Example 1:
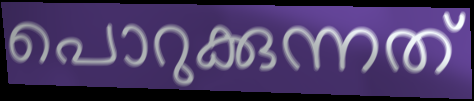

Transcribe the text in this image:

പൊറുക്കുന്നത്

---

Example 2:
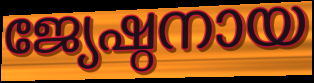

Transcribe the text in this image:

ജ്യേഷ്ഠനായ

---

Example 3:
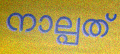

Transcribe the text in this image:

നാല്പത്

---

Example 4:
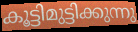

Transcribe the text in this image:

കൂട്ടിമുട്ടിക്കുന്നു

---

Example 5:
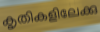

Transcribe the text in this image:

കൃതികളിലേക്കു